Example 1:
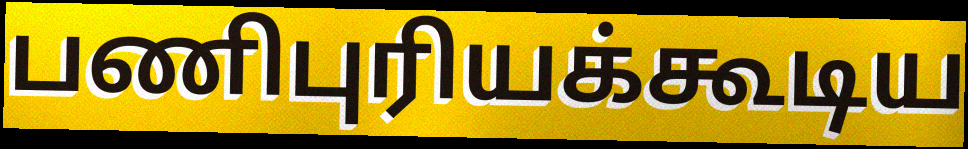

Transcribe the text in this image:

பணிபுரியக்கூடிய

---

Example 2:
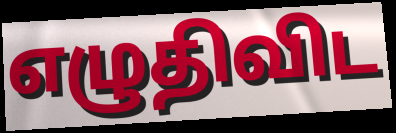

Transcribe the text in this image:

எழுதிவிட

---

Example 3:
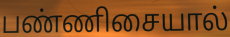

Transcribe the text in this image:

பண்ணிசையால்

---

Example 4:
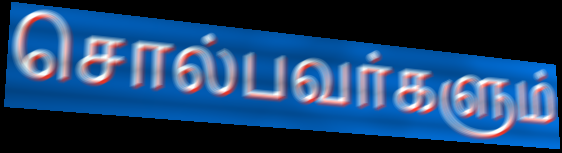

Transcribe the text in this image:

சொல்பவர்களும்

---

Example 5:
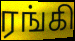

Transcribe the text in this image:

ரங்கி